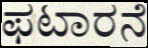
ಫಟಾರನೆ